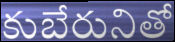
కుబేరునితో